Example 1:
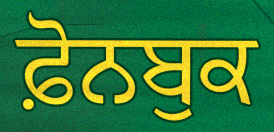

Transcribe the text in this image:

ਫ਼ੋਨਬੁਕ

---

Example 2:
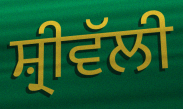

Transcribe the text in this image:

ਸ਼੍ਰੀਵੱਲੀ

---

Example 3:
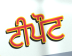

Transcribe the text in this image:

ਟੀਪੌਟ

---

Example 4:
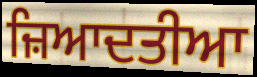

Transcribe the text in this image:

ਜ਼ਿਆਦਤੀਆ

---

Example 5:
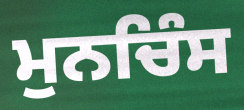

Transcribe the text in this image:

ਮੁਨਚਿੰਸ